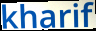
kharif